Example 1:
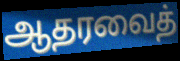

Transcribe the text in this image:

ஆதரவைத்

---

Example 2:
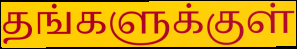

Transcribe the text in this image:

தங்களுக்குள்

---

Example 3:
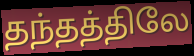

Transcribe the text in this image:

தந்தத்திலே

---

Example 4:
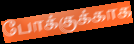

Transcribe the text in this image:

போக்குக்காக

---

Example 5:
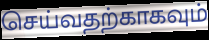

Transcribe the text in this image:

செய்வதற்காகவும்